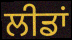
ਲੀਡਾਂ